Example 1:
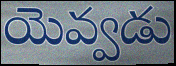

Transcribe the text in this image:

యెవ్వడు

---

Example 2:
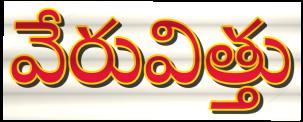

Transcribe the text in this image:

వేరువిత్తు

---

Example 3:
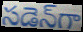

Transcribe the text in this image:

సడెన్‌గా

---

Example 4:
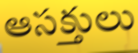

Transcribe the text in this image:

ఆసక్తులు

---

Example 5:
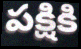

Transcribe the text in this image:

పక్షికి